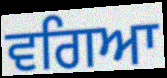
ਵਗਿਆ